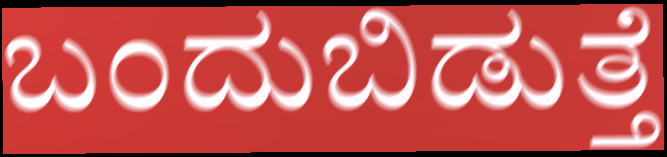
ಬಂದುಬಿಡುತ್ತೆ